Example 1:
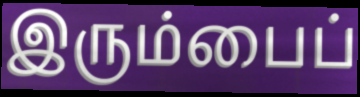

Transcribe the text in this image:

இரும்பைப்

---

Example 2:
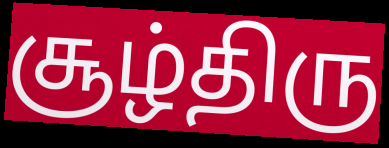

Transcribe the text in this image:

சூழ்திரு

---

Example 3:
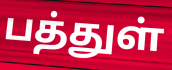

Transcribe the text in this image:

பத்துள்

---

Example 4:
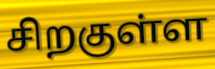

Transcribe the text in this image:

சிறகுள்ள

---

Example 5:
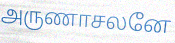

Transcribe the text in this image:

அருணாசலனே